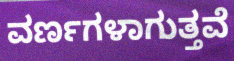
ವರ್ಣಗಳಾಗುತ್ತವೆ